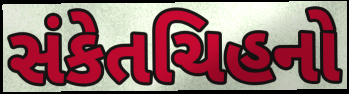
સંકેતચિહનો